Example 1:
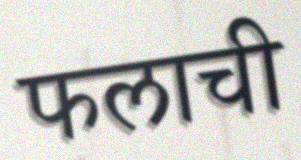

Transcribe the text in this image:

फलाची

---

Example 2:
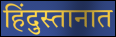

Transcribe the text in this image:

हिंदुस्तानात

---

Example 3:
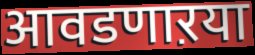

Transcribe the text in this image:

आवडणाऱया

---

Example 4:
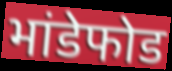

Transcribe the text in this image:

भांडेफोड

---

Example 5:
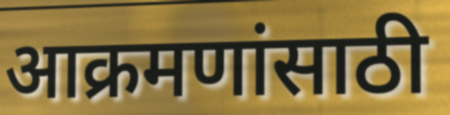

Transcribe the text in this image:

आक्रमणांसाठी